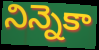
నిన్నెకా